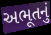
અભૂતનું